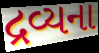
દ્રવ્યના